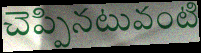
చెప్పినటువంటి